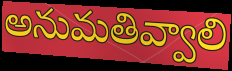
అనుమతివ్వాలి